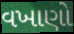
વખાણો